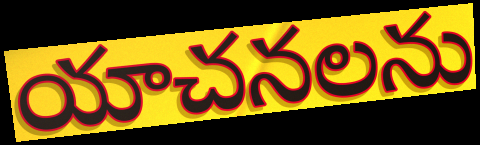
యాచనలను